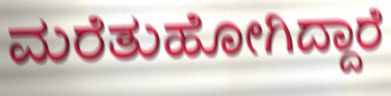
ಮರೆತುಹೋಗಿದ್ದಾರೆ